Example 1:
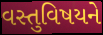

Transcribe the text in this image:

વસ્તુવિષયને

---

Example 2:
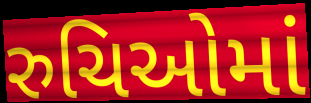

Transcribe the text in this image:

રુચિઓમાં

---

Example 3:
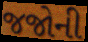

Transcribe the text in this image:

જજોની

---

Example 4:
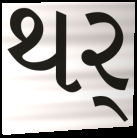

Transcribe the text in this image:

થર્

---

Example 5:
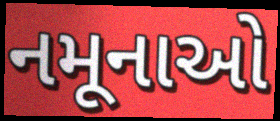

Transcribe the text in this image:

નમૂનાઓ